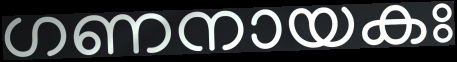
ഗണനായകഃ